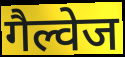
गैल्वेज